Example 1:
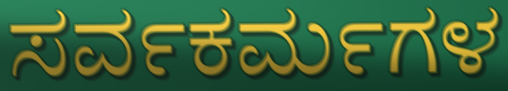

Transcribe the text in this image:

ಸರ್ವಕರ್ಮಗಳ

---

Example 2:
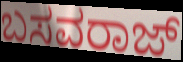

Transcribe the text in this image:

ಬಸವರಾಜ್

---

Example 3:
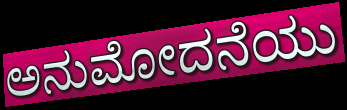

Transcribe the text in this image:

ಅನುಮೋದನೆಯು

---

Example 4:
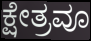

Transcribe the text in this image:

ಕ್ಷೇತ್ರವೂ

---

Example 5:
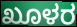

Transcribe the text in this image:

ಖೂಳರ